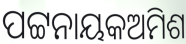
ପଟ୍ଟନାୟକଅମିଶ